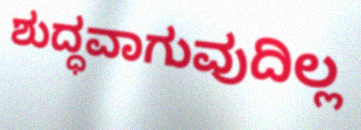
ಶುದ್ಧವಾಗುವುದಿಲ್ಲ